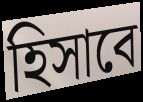
হিসাবে